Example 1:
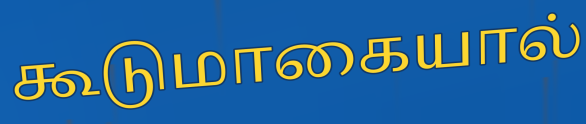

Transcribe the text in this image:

கூடுமாகையால்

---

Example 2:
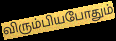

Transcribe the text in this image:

விரும்பியபோதும்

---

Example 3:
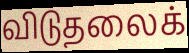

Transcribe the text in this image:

விடுதலைக்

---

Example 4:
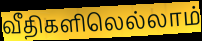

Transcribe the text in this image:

வீதிகளிலெல்லாம்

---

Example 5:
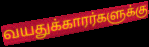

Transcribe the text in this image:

வயதுக்காரர்களுக்கு